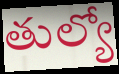
తుల్యో